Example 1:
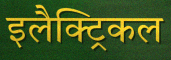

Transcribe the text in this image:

इलैक्ट्रिकल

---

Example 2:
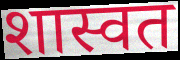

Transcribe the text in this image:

शास्वत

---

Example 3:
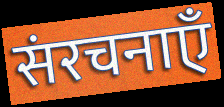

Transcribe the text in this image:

संरचनाएँ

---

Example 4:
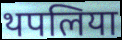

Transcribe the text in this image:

थपलिया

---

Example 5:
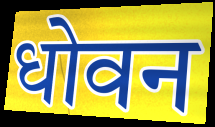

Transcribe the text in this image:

धोवन